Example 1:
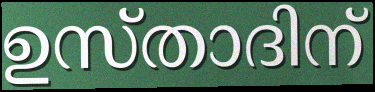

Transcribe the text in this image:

ഉസ്താദിന്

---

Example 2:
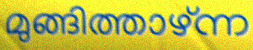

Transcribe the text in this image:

മുങ്ങിത്താഴ്ന്ന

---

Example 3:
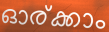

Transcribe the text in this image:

ഓര്ക്കാം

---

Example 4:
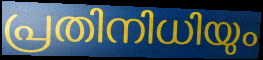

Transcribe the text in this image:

പ്രതിനിധിയും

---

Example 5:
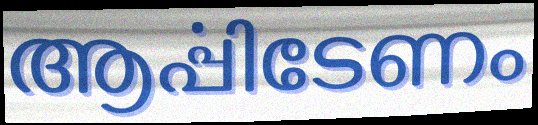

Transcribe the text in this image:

ആൎപ്പിടേണം